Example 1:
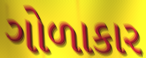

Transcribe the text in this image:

ગોળાકાર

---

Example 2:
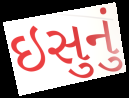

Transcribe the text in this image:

ઇસુનું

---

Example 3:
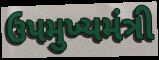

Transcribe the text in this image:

ઉપમુખ્યમંત્રી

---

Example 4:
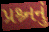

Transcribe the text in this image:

પ્રશ્ર્નનું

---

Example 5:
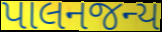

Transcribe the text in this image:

પાલનજન્ય